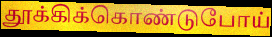
தூக்கிக்கொண்டுபோய்